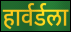
हार्वर्डला